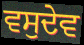
ਵਸੁਦੇਵ